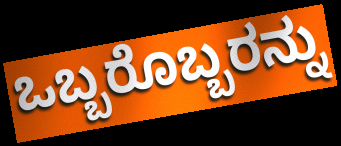
ಒಬ್ಬರೊಬ್ಬರನ್ನು